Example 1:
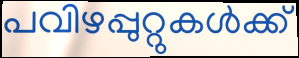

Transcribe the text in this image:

പവിഴപ്പുറ്റുകൾക്ക്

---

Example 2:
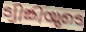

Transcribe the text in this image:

ട്വിങ്കിയുടെ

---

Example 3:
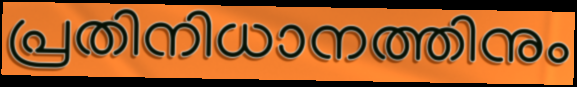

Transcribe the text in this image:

പ്രതിനിധാനത്തിനും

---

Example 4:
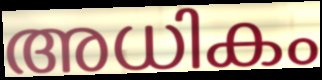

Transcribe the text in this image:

അധികം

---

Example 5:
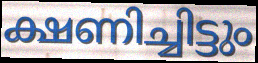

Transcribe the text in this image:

ക്ഷണിച്ചിട്ടും